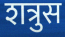
शत्रुस